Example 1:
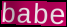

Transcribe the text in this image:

babe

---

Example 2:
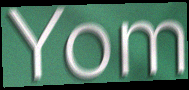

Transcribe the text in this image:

Yom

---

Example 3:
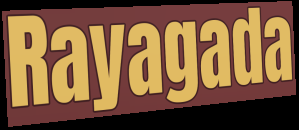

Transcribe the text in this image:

Rayagada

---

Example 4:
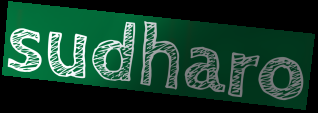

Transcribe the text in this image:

sudharo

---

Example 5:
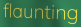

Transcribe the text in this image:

flaunting